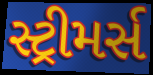
સ્ટ્રીમર્સ